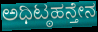
ಅಧಿಟ್ಠಹನ್ತೇನ